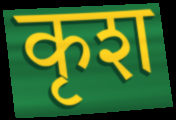
कृश